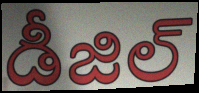
డీజిల్